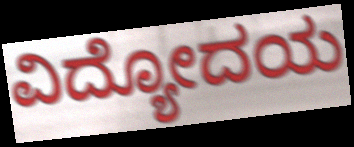
ವಿದ್ಯೋದಯ